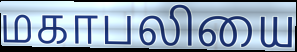
மகாபலியை